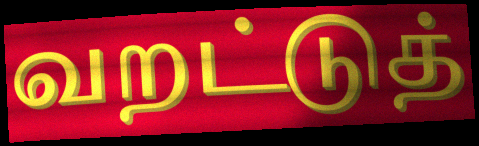
வறட்டுத்